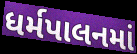
ધર્મપાલનમાં